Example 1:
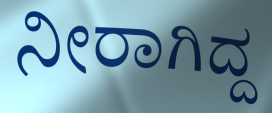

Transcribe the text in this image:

ನೀರಾಗಿದ್ದ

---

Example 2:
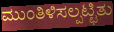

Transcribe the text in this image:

ಮುಂತಿಳಿಸಲ್ಪಟ್ಟಿತು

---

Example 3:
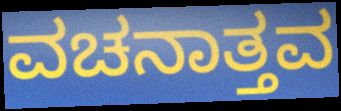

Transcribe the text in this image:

ವಚನಾತ್ತವ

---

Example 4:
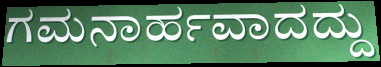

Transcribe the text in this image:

ಗಮನಾರ್ಹವಾದದ್ದು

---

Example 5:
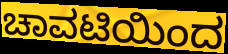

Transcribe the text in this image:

ಚಾವಟಿಯಿಂದ